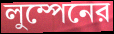
লুম্পেনের